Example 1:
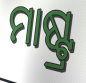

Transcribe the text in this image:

ମାଷ୍ଟ୍ର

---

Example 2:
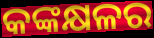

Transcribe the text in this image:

କଙ୍କକ୍ଷଳର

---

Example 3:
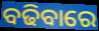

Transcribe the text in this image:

ବଢିବାରେ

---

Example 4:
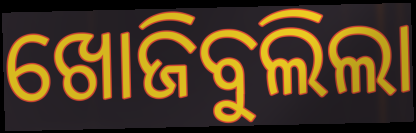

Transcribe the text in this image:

ଖୋଜିବୁଲିଲା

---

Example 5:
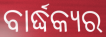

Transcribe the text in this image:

ବାର୍ଦ୍ଧକ୍ୟର